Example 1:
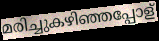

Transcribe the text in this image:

മരിച്ചുകഴിഞ്ഞപ്പോള്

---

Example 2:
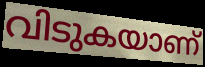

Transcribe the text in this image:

വിടുകയാണ്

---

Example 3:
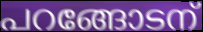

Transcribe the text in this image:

പറങ്ങോടന്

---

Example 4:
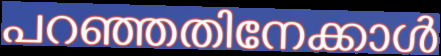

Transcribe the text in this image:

പറഞ്ഞതിനേക്കാൾ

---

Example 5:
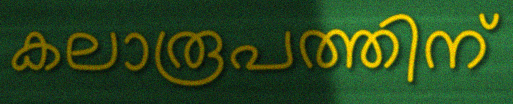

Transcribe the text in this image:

കലാരൂപത്തിന്